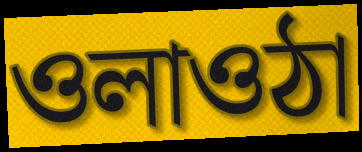
ওলাওঠা